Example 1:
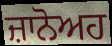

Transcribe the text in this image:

ਜ਼ਾਨੋਅਹ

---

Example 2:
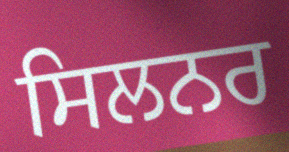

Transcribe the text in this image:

ਸਿਲਨਰ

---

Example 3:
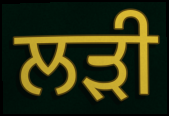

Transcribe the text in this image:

ਲਡ਼ੀ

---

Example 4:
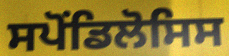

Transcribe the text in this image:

ਸਪੋਂਡਿਲੋਸਿਸ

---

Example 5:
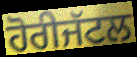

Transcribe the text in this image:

ਹੋਰੀਜੱਟਲ